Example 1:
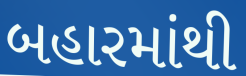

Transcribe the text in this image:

બહારમાંથી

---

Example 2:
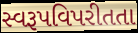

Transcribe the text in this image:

સ્વરૂપવિપરીતતા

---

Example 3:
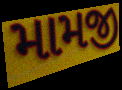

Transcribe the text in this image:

મામજી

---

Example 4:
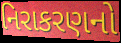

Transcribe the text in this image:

નિરાકરણનો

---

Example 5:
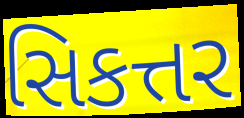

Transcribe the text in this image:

સિકત્તર